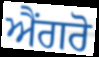
ਐਂਗਰੋ